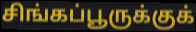
சிங்கப்பூருக்குக்